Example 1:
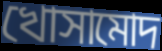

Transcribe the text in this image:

খোসামোদ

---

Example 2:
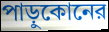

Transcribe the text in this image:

পাড়ুকোনের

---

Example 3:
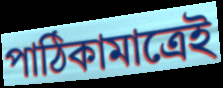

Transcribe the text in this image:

পাঠিকামাত্রেই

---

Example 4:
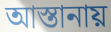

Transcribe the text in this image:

আস্তানায়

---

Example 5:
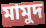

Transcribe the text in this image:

মামুদ